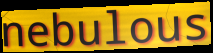
nebulous